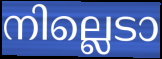
നില്ലെടാ